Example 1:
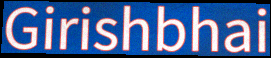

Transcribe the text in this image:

Girishbhai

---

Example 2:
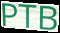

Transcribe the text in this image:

PTB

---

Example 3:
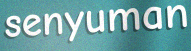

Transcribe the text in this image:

senyuman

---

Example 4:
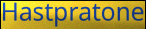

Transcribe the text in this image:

Hastpratone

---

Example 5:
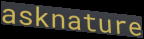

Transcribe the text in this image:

asknature